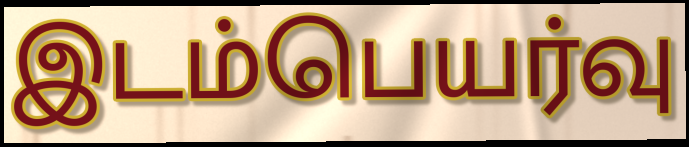
இடம்பெயர்வு